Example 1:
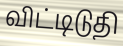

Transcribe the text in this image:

விட்டிடுதி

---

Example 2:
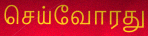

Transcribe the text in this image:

செய்வோரது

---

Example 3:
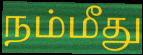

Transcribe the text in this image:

நம்மீது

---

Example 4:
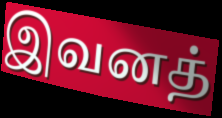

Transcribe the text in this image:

இவனத்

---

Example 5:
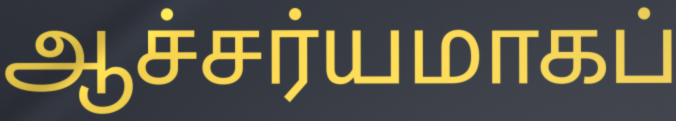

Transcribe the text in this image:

ஆச்சர்யமாகப்